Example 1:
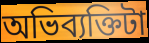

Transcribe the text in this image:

অভিব্যক্তিটা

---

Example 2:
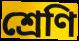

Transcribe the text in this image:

শ্রেণি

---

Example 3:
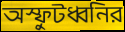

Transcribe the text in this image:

অস্ফুটধ্বনির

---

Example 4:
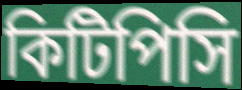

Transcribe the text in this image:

কিটিপিসি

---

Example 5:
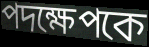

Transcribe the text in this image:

পদক্ষেপকে